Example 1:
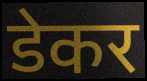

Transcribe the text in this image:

डेकर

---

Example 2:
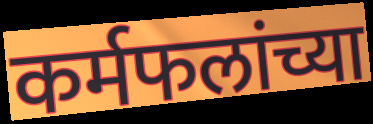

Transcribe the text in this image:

कर्मफलांच्या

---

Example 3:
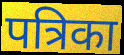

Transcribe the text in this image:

पत्रिका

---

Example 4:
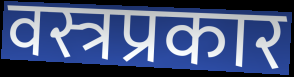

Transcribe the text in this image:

वस्त्रप्रकार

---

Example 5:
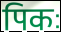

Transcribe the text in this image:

पिकः